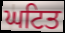
ਘਟਿਤ